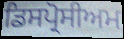
ਡਿਸਪ੍ਰੋਸੀਅਮ